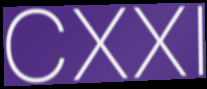
CXXI